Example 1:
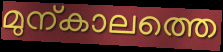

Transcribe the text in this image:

മുന്കാലത്തെ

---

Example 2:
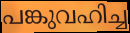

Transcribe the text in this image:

പങ്കുവഹിച്ച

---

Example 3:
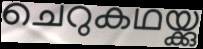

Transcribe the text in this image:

ചെറുകഥയ്ക്കു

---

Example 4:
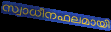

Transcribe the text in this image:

സ്വാധീനഫലമായി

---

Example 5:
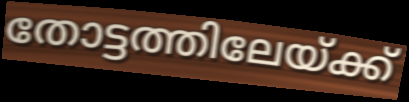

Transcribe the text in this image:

തോട്ടത്തിലേയ്ക്ക്